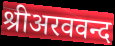
श्रीअरववन्द